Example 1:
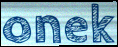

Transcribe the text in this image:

onek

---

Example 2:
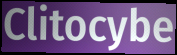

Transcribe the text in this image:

Clitocybe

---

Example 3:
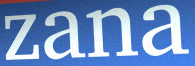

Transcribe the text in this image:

zana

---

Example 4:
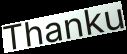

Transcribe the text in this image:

Thanku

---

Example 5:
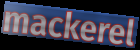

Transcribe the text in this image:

mackerel